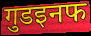
गुडइनफ